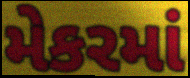
મેકરમાં